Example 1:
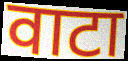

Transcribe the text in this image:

वाटा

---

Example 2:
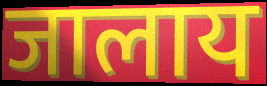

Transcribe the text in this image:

जालाय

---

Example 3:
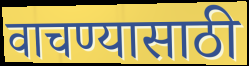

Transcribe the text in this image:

वाचण्यासाठी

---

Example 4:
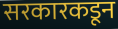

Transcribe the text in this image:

सरकारकडून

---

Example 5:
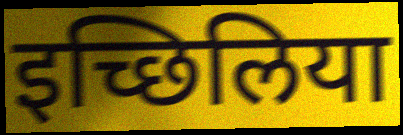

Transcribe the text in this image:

इच्छिलिया